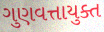
ગુણવત્તાયુક્ત